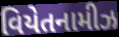
વિયેતનામીઝ